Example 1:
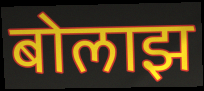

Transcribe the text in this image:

बोलाझ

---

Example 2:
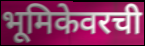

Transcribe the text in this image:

भूमिकेवरची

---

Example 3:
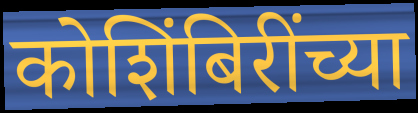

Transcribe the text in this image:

कोशिंबिरींच्या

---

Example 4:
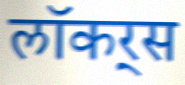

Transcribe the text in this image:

लॉकर्स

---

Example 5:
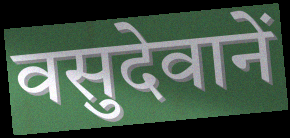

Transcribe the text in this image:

वसुदेवानें